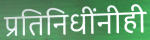
प्रतिनिधींनीही